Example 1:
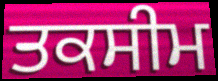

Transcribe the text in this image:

ਤਕਸੀਮ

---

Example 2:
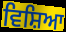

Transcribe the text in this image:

ਵਿਸ਼ਿਆ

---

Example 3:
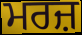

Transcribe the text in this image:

ਮਰਜ਼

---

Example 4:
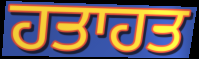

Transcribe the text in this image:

ਹਤਾਹਤ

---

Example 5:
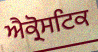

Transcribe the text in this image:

ਐਕ੍ਰੋਸਟਿਕ